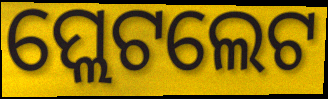
ପ୍ଲେଟଲେଟ